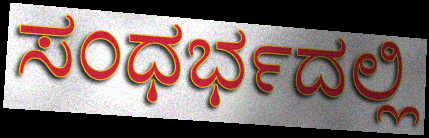
ಸಂಧರ್ಭದಲ್ಲಿ